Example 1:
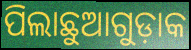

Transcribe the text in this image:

ପିଲାଛୁଆଗୁଡ଼ାକ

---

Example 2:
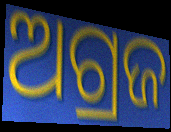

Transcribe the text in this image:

ଅଗ୍ରଜ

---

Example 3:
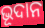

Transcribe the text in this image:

ଭୂଦାନ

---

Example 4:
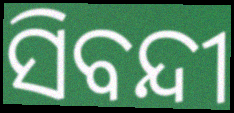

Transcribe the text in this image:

ସିବନ୍ଦୀ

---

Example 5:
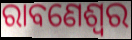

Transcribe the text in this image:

ରାବଣେଶ୍ୱର